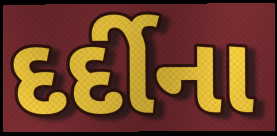
દર્દીના